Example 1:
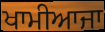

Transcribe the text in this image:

ਖਾਮੀਆਜਾ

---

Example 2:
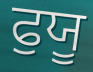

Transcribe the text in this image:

ਫੁਯੂ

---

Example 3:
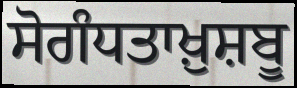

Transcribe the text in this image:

ਸੋਗੰਧਤਾਖ਼ੁਸ਼ਬੂ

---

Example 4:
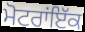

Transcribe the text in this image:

ਮੋਟਰਾਂਇੱਕ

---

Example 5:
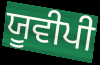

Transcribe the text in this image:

ਯੂਵੀਪੀ